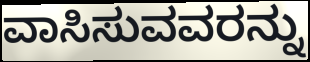
ವಾಸಿಸುವವರನ್ನು